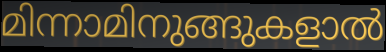
മിന്നാമിനുങ്ങുകളാൽ